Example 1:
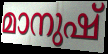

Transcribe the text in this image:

മാനുഷ്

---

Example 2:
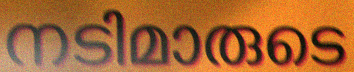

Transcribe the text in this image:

നടിമാരുടെ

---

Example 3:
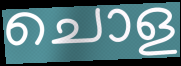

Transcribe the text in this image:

ചൊള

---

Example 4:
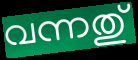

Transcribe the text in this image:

വന്നതു്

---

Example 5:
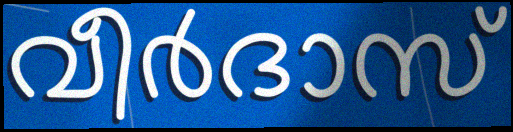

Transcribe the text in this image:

വീർദാസ്